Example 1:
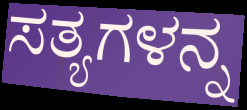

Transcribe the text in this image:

ಸತ್ಯಗಳನ್ನ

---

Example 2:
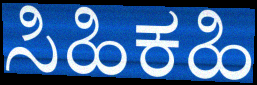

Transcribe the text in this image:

ಸಿಹಿಕಹಿ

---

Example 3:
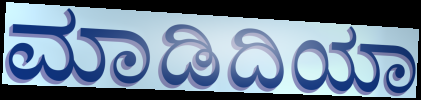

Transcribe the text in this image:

ಮಾಡಿದಿಯಾ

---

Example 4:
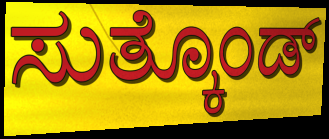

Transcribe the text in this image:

ಸುತ್ಕೊಂಡ್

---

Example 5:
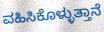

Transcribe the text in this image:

ವಹಿಸಿಕೊಳ್ಳುತ್ತಾನೆ